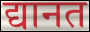
द्यानत